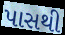
પાસથી